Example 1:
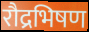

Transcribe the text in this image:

रौद्रभिषण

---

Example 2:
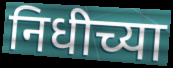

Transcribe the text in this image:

निधीच्या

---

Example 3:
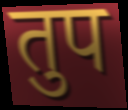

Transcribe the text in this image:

तुप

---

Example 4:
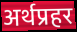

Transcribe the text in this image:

अर्थप्रहर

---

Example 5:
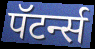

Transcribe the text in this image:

पॅटर्न्स